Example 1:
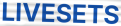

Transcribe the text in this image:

LIVESETS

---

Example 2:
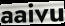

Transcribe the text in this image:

aaivu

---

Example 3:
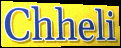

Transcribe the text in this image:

Chheli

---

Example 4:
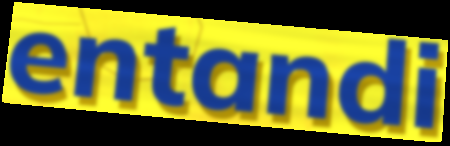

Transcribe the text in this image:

entandi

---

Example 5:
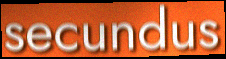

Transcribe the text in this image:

secundus